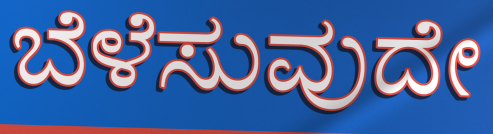
ಬೆಳೆಸುವುದೇ